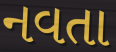
નવતા